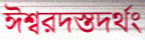
ঈশ্বরদস্তদর্থং